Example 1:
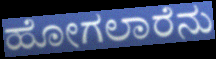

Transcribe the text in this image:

ಹೋಗಲಾರೆನು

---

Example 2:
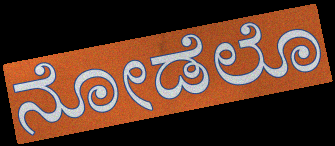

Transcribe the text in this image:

ನೋಡೆಲೊ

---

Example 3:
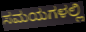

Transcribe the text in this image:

ಸಮಯಗಳಲ್ಲಿ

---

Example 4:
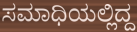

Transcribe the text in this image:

ಸಮಾಧಿಯಲ್ಲಿದ್ದ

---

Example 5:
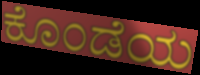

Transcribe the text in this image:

ಕೊಂಡೆಯ